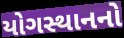
યોગસ્થાનનો